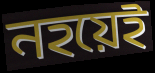
নহয়েই